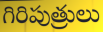
గిరిపుత్రులు